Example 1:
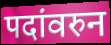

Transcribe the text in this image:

पदांवरुन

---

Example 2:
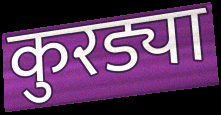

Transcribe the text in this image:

कुरड्या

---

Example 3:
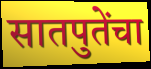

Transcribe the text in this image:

सातपुतेंचा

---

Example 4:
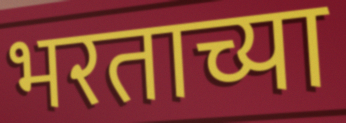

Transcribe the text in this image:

भरताच्या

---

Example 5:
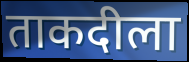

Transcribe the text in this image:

ताकदीला